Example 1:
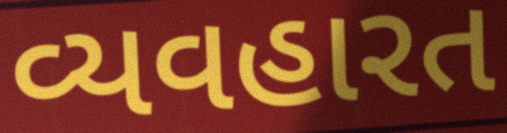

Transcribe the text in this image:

વ્યવહારત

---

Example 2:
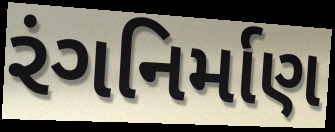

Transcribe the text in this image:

રંગનિર્માણ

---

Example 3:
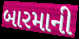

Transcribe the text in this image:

બારમાની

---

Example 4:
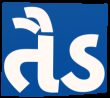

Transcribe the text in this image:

તૈડ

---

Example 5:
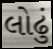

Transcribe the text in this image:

લોઢું